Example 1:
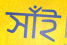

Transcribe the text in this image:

সাঁই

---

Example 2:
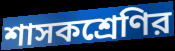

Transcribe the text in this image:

শাসকশ্রেণির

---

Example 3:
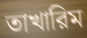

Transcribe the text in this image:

তাখারিম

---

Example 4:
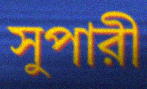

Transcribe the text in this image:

সুপারী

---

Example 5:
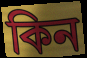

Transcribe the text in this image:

কিন